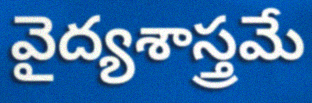
వైద్యశాస్త్రమే